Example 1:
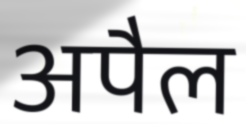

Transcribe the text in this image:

अपैल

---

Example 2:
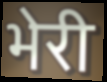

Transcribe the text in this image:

भेरी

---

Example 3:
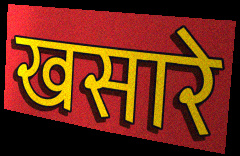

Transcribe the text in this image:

खसारे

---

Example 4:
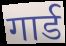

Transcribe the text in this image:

गार्ड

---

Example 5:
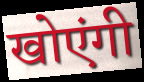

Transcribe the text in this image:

खोएंगी